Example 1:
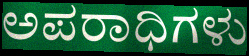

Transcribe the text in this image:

ಅಪರಾಧಿಗಳು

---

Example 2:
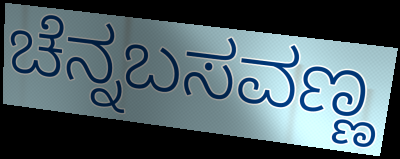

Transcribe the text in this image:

ಚೆನ್ನಬಸವಣ್ಣ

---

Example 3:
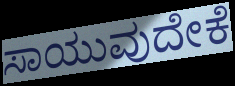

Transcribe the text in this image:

ಸಾಯುವುದೇಕೆ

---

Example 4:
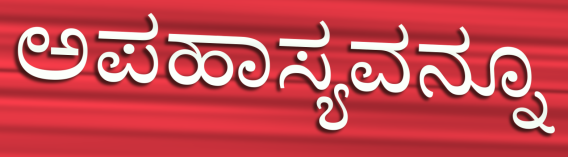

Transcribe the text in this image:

ಅಪಹಾಸ್ಯವನ್ನೂ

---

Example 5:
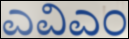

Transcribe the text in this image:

ಎವಿಎಂ